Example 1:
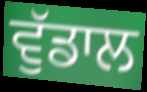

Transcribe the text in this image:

ਵੁੱਡਾਲ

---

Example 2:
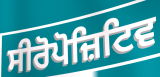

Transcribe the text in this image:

ਸੀਰੋਪੋਜ਼ਿਟਿਵ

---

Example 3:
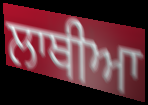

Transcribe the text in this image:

ਲਾਥੀਆ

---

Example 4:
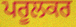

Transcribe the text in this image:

ਪਰੂਲਕਰ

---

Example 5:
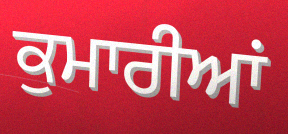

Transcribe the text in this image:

ਕੁਮਾਰੀਆਂ